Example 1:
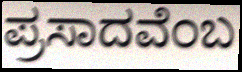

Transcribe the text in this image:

ಪ್ರಸಾದವೆಂಬ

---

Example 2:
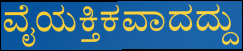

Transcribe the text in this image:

ವೈಯಕ್ತಿಕವಾದದ್ದು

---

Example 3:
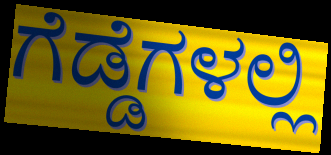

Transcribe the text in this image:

ಗೆಡ್ಡೆಗಳಲ್ಲಿ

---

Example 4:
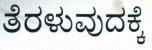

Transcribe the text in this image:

ತೆರಳುವುದಕ್ಕೆ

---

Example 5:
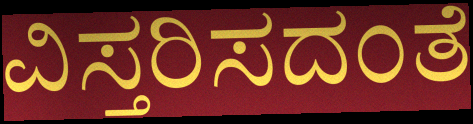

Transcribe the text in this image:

ವಿಸ್ತರಿಸದಂತೆ